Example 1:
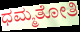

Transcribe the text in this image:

ಧಮ್ಮತೋತಿ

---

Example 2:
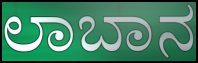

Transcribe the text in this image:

ಲಾಬಾನ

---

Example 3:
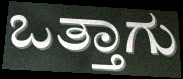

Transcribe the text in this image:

ಒತ್ತಾಗು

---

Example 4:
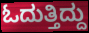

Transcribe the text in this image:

ಓದುತ್ತಿದ್ದು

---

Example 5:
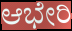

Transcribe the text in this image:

ಆಭೇರಿ